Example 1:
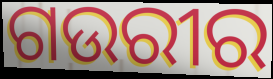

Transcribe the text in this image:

ଗଉରୀର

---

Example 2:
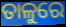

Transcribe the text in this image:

ତାଳୁରେ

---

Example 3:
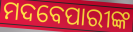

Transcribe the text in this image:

ମଦବେପାରୀଙ୍କ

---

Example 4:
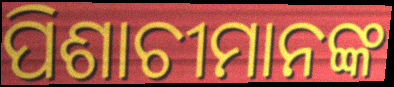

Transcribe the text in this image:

ପିଶାଚୀମାନଙ୍କ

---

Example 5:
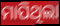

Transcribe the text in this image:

ମାପିଥିଲା